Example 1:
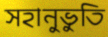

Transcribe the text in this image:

সহানুভুতি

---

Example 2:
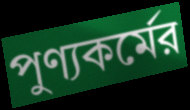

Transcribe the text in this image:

পুণ্যকর্মের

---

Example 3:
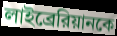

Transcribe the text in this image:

লাইব্রেরিয়ানকে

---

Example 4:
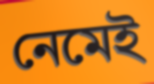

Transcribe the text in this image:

নেমেই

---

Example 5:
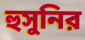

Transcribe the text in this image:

হুসুনির